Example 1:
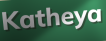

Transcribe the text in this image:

Katheya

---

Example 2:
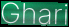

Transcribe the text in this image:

Ghari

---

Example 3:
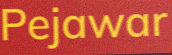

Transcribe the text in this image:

Pejawar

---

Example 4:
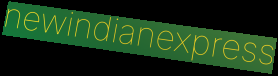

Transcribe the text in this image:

newindianexpress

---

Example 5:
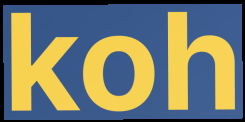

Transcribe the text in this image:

koh